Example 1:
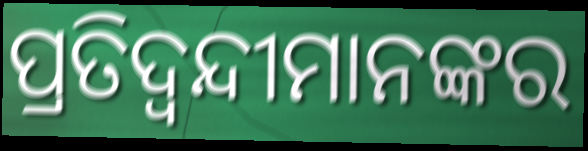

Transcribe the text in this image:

ପ୍ରତିଦ୍ୱନ୍ଦୀମାନଙ୍କର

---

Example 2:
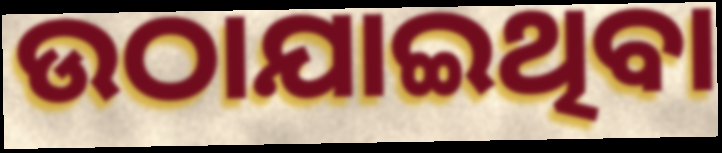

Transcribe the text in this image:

ଉଠାଯାଇଥିବା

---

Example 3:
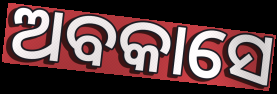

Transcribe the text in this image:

ଅବକାସେ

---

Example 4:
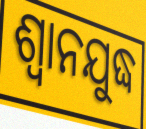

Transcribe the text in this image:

ଶ୍ଵାନଯୁଦ୍ଧ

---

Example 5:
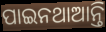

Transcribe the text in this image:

ପାଇନଥାଆନ୍ତି